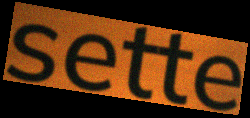
sette